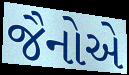
જૈનોએ